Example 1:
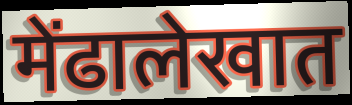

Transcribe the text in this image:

मेंढालेखात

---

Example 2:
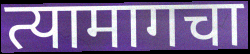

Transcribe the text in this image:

त्यामागचा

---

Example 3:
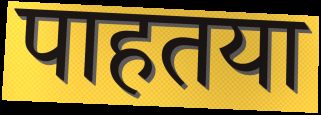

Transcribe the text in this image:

पाहतया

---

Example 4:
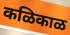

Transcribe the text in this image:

कळिकाळ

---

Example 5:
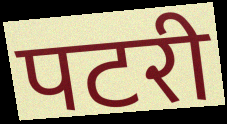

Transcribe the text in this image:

पटरी